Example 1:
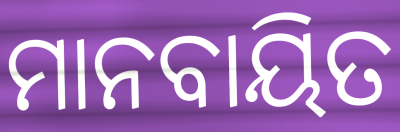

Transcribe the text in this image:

ମାନବାୟିତ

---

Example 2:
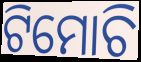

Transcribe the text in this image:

ଟିମୋଚି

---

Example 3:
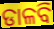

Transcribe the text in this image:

ଡାଳବି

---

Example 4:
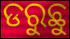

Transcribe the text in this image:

ଡରୁଛୁ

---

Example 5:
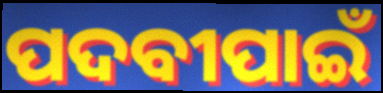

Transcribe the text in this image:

ପଦବୀପାଇଁ